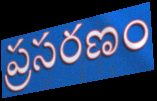
ప్రసరణం